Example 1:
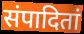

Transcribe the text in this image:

संपादितां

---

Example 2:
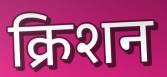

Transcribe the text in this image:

क्रिशन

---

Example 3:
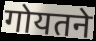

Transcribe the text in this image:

गोयतने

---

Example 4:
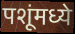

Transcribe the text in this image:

पशूंमध्ये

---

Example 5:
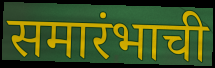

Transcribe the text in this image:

समारंभाची